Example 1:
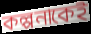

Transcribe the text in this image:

কল্পনাকেই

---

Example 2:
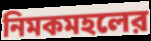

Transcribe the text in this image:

নিমকমহলের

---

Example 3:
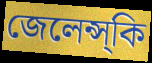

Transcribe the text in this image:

জেলেন্স্কি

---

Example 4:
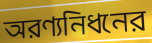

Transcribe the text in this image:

অরণ্যনিধনের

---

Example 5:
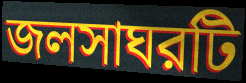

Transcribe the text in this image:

জলসাঘরটি